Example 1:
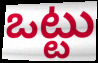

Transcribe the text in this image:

ఒట్టు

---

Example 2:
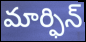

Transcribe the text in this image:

మార్ఫిన్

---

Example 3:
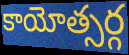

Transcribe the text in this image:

కాయోత్సర్గ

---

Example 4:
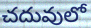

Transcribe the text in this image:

చదువులో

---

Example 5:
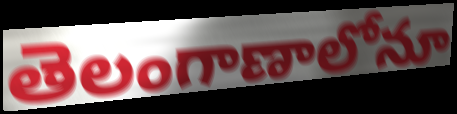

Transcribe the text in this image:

తెలంగాణాలోనూ